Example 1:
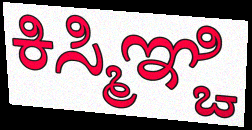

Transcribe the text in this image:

ಕಿಸ್ಮಿಞ್ಚಿ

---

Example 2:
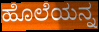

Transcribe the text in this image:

ಹೊಲೆಯನ್ನ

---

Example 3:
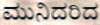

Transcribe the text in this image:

ಮುನಿದರಿದ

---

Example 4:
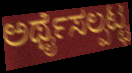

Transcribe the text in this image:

ಅರ್ಥೈಸಲ್ಪಟ್ಟ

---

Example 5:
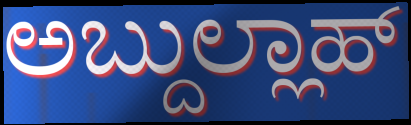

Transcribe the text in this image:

ಅಬ್ದುಲ್ಲಾಹ್